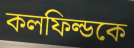
কলফিল্ডকে